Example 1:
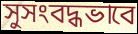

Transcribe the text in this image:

সুসংবদ্ধভাবে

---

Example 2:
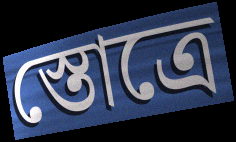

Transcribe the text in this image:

স্তোত্রে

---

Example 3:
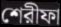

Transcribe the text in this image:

শেরীফা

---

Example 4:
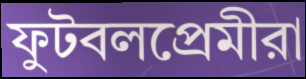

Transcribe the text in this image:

ফুটবলপ্রেমীরা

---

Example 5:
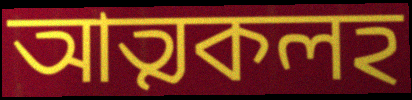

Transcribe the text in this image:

আত্মকলহ